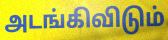
அடங்கிவிடும்